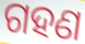
ଗହଣ